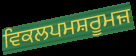
ਵਿਕਲਪਮਸ਼ਰੂਮਜ਼